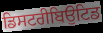
ਡਿਸਟਰੀਬਿਉਟਿਡ